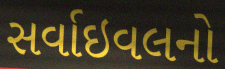
સર્વાઇવલનો